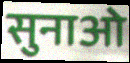
सुनाओ